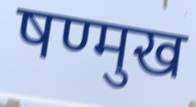
षण्मुख